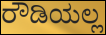
ರೌಡಿಯಲ್ಲ